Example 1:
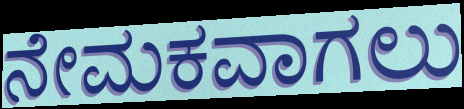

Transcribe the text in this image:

ನೇಮಕವಾಗಲು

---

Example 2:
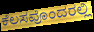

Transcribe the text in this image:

ಕೆಲಸವೊಂದರಲ್ಲಿ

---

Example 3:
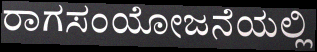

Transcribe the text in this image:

ರಾಗಸಂಯೋಜನೆಯಲ್ಲಿ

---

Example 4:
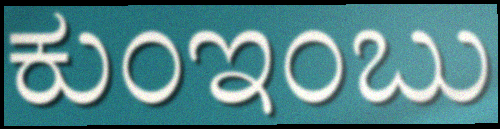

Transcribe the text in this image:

ಕುಂಇಂಬು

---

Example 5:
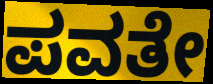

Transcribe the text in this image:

ಪವತೇ